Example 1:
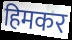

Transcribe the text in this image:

हिमकर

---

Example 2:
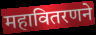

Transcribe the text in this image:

महावितरणने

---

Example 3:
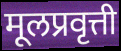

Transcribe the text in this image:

मूलप्रवृत्ती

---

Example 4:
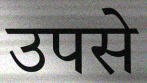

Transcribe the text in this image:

उपसे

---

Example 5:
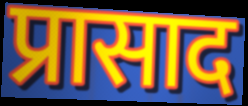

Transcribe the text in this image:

प्रासाद